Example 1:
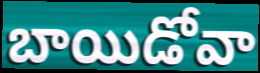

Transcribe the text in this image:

బాయిడోవా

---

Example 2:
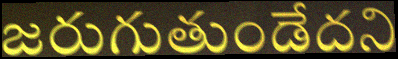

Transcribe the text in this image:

జరుగుతుండేదని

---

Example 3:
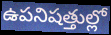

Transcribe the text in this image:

ఉపనిషత్తుల్లో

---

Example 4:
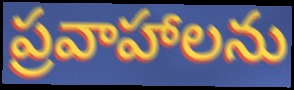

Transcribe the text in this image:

ప్రవాహాలను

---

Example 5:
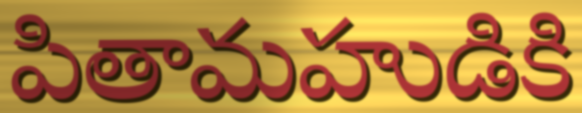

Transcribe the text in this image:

పితామహుడికి